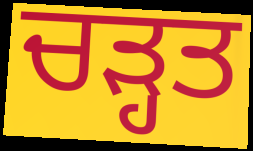
ਚੜ੍ਹਤ